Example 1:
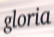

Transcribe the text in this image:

gloria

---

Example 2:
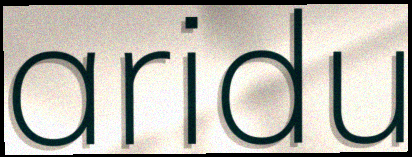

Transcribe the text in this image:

aridu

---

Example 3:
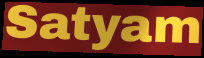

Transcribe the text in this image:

Satyam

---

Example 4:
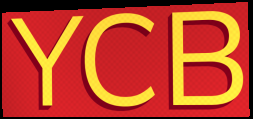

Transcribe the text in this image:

YCB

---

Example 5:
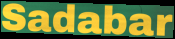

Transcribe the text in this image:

Sadabar